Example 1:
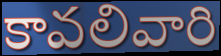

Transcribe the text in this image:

కావలివారి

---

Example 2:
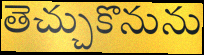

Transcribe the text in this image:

తెచ్చుకొనును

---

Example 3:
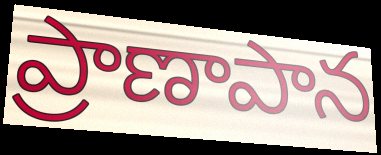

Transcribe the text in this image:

ప్రాణాపాన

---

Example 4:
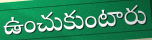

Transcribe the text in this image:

ఉంచుకుంటారు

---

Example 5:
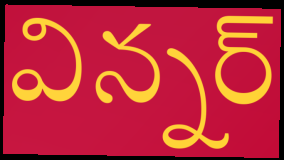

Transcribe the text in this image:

విన్నర్